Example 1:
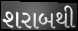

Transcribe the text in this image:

શરાબથી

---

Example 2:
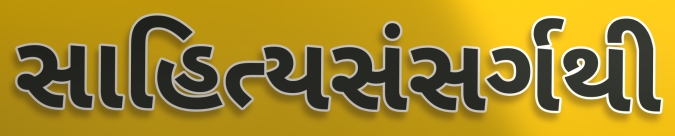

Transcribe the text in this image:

સાહિત્યસંસર્ગથી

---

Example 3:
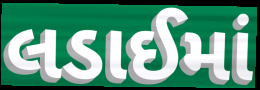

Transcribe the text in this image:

લડાઈમાં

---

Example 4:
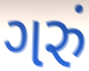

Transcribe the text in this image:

ગરું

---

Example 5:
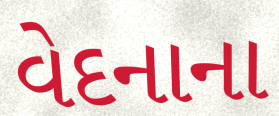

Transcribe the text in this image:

વેદનાના